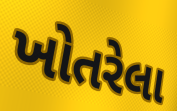
ખોતરેલા